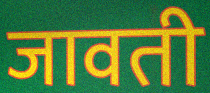
जावती